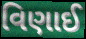
વિણાઈ